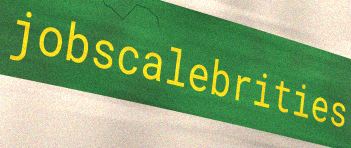
jobscalebrities